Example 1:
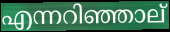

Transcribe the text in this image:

എന്നറിഞ്ഞാല്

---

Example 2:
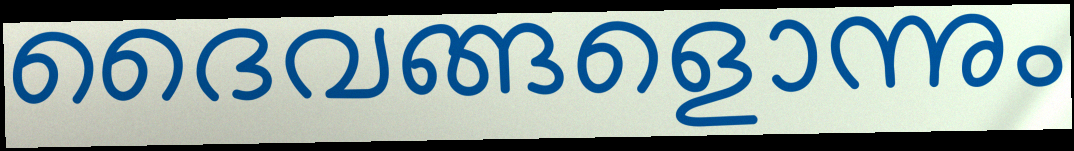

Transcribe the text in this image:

ദൈവങ്ങളൊന്നും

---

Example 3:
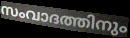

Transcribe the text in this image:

സംവാദത്തിനും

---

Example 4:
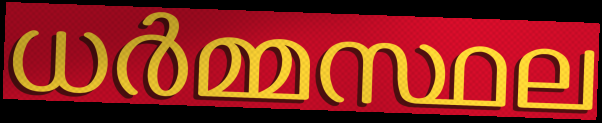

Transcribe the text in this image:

ധർമ്മസ്ഥല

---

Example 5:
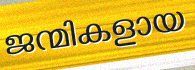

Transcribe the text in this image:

ജന്മികളായ